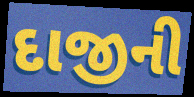
દાજીની